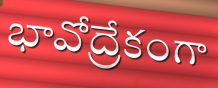
భావోద్రేకంగా